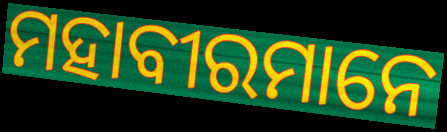
ମହାବୀରମାନେ